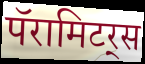
पॅरामिटर्स